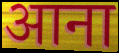
आना